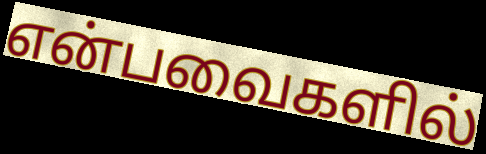
என்பவைகளில்